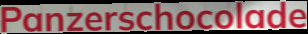
Panzerschocolade